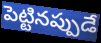
పెట్టినప్పుడే